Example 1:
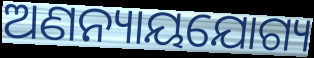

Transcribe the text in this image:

ଅଣନ୍ୟାୟଯୋଗ୍ୟ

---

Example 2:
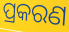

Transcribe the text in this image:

ପ୍ରକରଣ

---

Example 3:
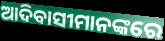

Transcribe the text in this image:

ଆଦିବାସୀମାନଙ୍କରେ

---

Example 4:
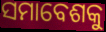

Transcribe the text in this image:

ସମାବେଶକୁ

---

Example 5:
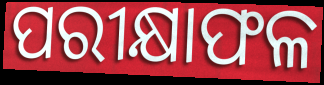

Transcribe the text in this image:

ପରୀକ୍ଷାଫଳ